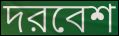
দরবেশ